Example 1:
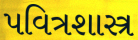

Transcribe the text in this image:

પવિત્રશાસ્ત્ર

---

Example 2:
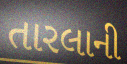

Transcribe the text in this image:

તારલાની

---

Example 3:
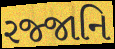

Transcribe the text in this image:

રજ્જાનિ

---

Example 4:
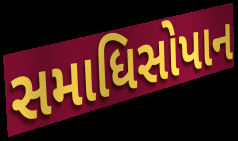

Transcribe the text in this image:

સમાધિસોપાન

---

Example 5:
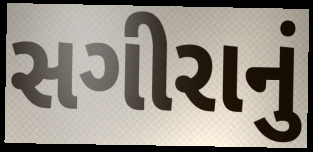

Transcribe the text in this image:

સગીરાનું